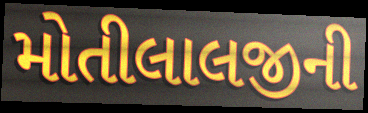
મોતીલાલજીની